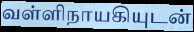
வள்ளிநாயகியுடன்